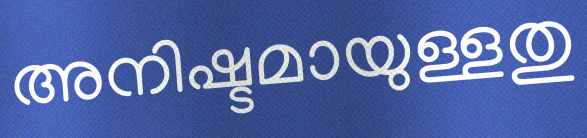
അനിഷ്ടമായുള്ളതു